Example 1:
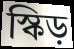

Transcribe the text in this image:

স্কিড়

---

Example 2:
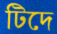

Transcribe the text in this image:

টিদে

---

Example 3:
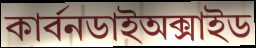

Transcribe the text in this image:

কার্বনডাইঅক্সাইড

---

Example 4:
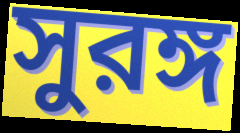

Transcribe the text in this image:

সুরঙ্গ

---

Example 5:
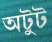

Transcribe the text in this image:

অটুট